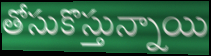
తోసుకొస్తున్నాయి